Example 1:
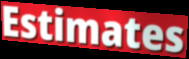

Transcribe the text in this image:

Estimates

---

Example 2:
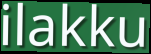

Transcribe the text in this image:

ilakku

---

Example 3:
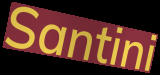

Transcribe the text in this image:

Santini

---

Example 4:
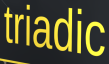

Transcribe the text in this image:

triadic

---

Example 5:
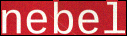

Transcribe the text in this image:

nebel